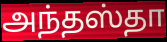
அந்தஸ்தா